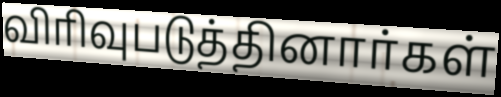
விரிவுபடுத்தினார்கள்